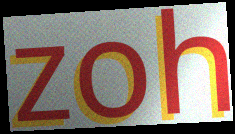
zoh